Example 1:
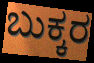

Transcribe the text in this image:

ಬುಕ್ಕರ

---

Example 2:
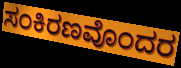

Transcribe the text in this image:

ಸಂಕಿರಣವೊಂದರ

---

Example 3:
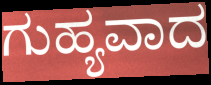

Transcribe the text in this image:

ಗುಹ್ಯವಾದ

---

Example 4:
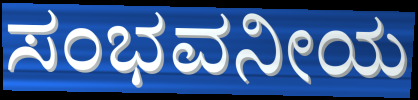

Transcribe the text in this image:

ಸಂಭವನೀಯ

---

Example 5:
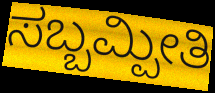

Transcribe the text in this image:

ಸಬ್ಬಮ್ಪೀತಿ